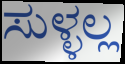
ಸುಳ್ಳಲ್ಲ